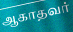
ஆகாதவர்